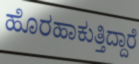
ಹೊರಹಾಕುತ್ತಿದ್ದಾರೆ